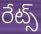
రేట్స్